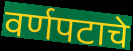
वर्णपटाचे